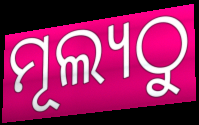
ମୂଲ୍ୟଠୁ